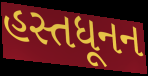
હસ્તધૂનન